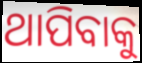
ଥାପିବାକୁ